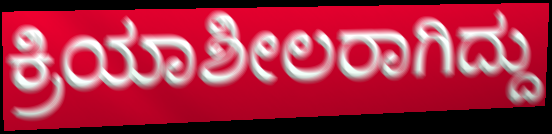
ಕ್ರಿಯಾಶೀಲರಾಗಿದ್ದು